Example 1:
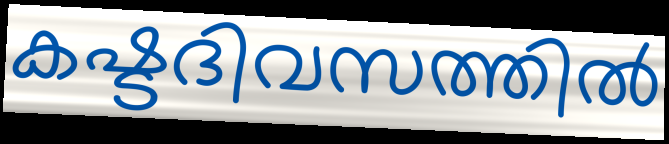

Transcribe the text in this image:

കഷ്ടദിവസത്തിൽ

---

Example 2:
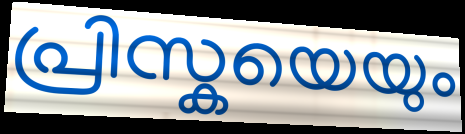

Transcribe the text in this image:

പ്രിസ്കയെയും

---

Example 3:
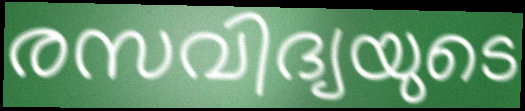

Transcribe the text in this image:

രസവിദ്യയുടെ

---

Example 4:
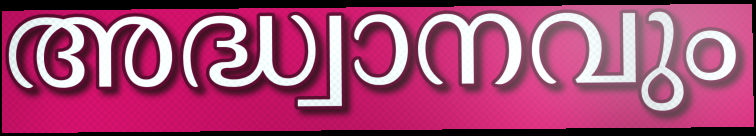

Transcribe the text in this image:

അദ്ധ്വാനവും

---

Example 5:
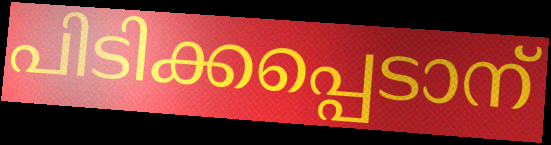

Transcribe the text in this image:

പിടിക്കപ്പെടാന്